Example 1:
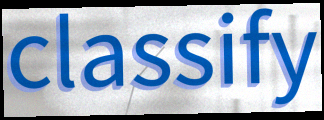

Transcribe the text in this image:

classify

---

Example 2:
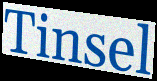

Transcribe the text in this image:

Tinsel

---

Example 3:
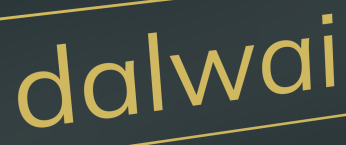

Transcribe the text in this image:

dalwai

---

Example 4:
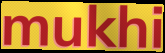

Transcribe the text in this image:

mukhi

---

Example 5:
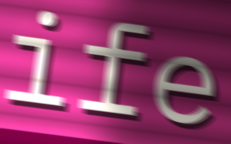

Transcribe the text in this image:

ife